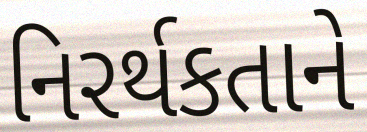
નિરર્થકતાને